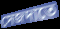
সেজদাতে